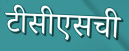
टीसीएसची